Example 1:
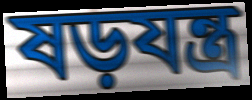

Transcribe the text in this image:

ষড়যন্ত্র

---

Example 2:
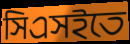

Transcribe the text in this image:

সিএসইতে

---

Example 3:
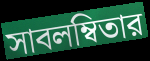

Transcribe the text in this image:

সাবলম্বিতার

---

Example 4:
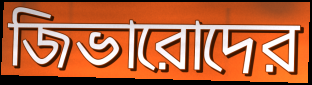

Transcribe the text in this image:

জিভারোদের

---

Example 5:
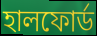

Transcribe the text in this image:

হালফোর্ড